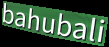
bahubali